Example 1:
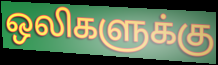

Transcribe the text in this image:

ஒலிகளுக்கு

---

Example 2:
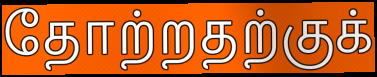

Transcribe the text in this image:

தோற்றதற்குக்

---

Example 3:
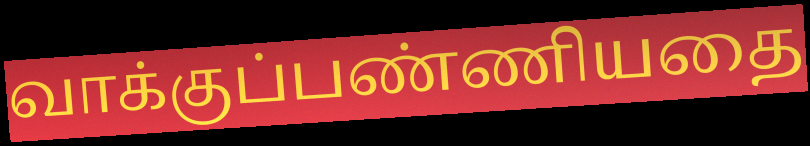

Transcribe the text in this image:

வாக்குப்பண்ணியதை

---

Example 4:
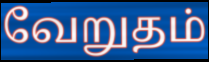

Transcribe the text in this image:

வேறுதம்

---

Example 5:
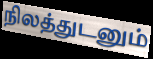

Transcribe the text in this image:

நிலத்துடனும்